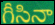
గీసినా